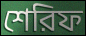
শেরিফ